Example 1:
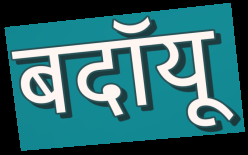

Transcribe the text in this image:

बदॉयू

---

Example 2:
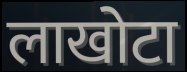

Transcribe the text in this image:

लाखोटा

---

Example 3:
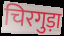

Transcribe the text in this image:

चिरगुड़ा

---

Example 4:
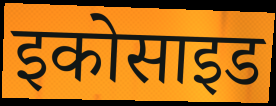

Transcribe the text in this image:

इकोसाइड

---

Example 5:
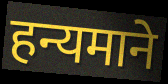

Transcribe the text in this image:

हन्यमाने